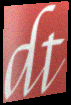
dt